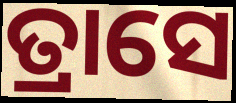
ତ୍ରାସେ